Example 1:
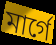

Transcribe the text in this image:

মার্গে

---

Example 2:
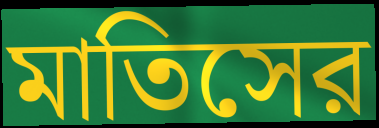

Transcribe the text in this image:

মাতিসের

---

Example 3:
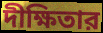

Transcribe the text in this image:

দীক্ষিতার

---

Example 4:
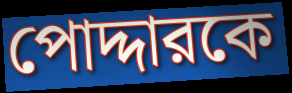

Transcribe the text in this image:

পোদ্দারকে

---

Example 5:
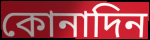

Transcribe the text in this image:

কোনাদিন